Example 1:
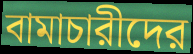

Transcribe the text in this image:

বামাচারীদের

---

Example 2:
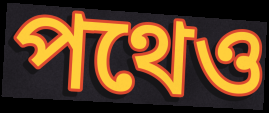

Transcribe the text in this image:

পথেও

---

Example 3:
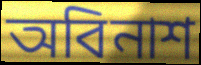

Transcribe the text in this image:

অবিনাশ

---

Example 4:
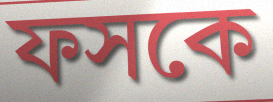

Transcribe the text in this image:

ফসকে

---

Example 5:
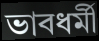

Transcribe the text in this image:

ভাবধর্মী